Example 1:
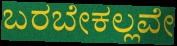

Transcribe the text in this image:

ಬರಬೇಕಲ್ಲವೇ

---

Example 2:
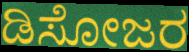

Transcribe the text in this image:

ಡಿಸೋಜರ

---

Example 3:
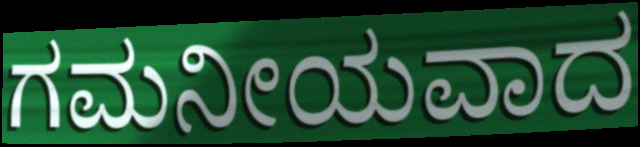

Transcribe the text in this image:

ಗಮನೀಯವಾದ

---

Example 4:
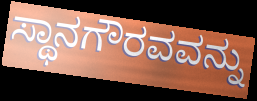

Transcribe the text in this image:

ಸ್ಥಾನಗೌರವವನ್ನು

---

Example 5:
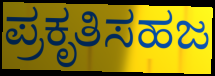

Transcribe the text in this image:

ಪ್ರಕೃತಿಸಹಜ